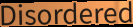
Disordered